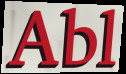
Abl